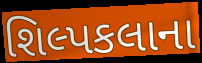
શિલ્પકલાના